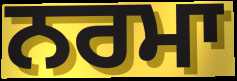
ਨਰਮਾ